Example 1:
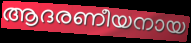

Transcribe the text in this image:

ആദരണീയനായ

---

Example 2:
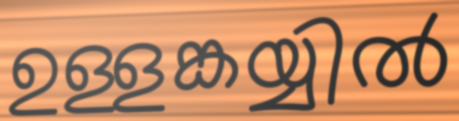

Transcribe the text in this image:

ഉള്ളങ്കയ്യിൽ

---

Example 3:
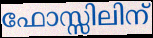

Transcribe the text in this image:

ഫോസ്സിലിന്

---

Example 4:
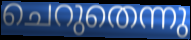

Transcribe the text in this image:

ചെറുതെന്നു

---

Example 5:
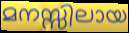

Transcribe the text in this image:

മനസ്സിലായ